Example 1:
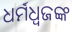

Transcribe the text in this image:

ଧର୍ମଧ୍ୱଜଙ୍କ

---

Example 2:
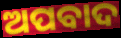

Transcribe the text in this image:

ଅପବାଦ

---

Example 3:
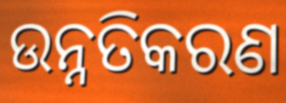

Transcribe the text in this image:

ଉନ୍ନତିକରଣ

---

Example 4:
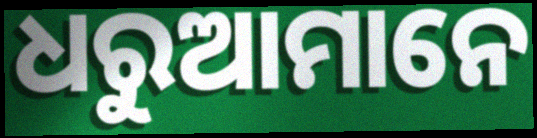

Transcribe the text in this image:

ଧରୁଆମାନେ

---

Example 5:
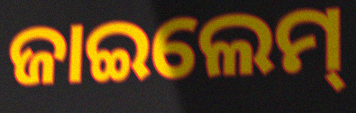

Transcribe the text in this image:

ଜାଇଲେମ୍